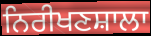
ਨਿਰੀਖਣਸ਼ਾਲਾ